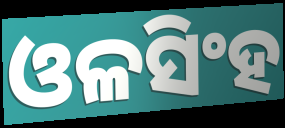
ଓଳସିଂହ